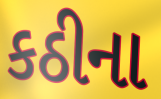
કઠીના